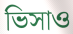
ভিসাও